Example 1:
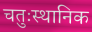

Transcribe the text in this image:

चतुःस्थानिक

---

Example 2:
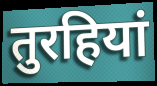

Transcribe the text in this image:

तुरहियां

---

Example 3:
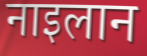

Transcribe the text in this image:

नाइलान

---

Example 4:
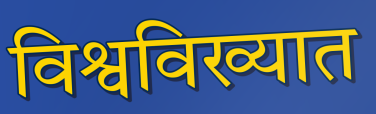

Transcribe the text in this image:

विश्वविख्यात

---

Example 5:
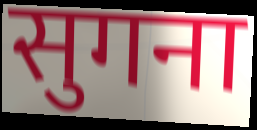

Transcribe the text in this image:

सुगना